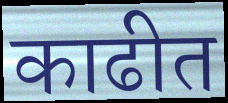
काढीत